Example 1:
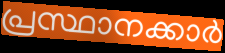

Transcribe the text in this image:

പ്രസ്ഥാനക്കാർ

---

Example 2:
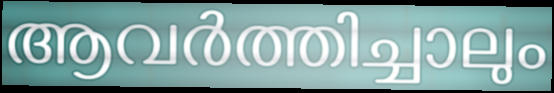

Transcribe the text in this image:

ആവർത്തിച്ചാലും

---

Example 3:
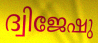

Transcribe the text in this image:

ദ്വിജേഷു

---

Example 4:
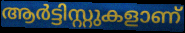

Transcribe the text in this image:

ആർട്ടിസ്റ്റുകളാണ്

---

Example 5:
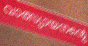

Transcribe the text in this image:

വാത്സ്യായനന്റെ